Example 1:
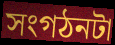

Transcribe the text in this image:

সংগঠনটা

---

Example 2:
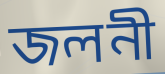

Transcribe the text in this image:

জলনী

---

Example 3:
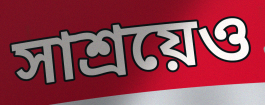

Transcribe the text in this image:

সাশ্রয়েও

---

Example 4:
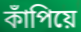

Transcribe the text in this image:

কাঁপিয়ে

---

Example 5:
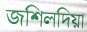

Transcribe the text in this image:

জশিলদিয়া